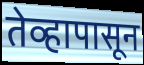
तेव्हापासून